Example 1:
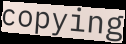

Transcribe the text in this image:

copying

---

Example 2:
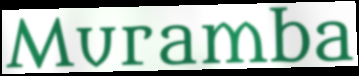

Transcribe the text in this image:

Muramba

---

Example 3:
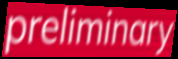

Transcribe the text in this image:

preliminary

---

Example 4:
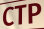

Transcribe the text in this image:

CTP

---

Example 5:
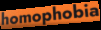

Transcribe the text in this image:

homophobia